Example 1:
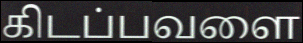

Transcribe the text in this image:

கிடப்பவளை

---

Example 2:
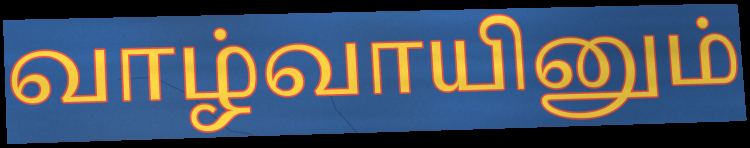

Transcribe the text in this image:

வாழ்வாயினும்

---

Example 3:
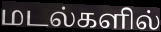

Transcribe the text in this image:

மடல்களில்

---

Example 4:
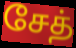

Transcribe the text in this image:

சேத்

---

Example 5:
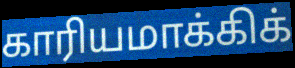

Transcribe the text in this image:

காரியமாக்கிக்